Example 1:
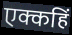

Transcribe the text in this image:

एक्कहिं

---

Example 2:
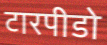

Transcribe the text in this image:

टारपीडो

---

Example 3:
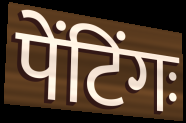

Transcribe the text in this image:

पेंटिंगः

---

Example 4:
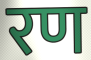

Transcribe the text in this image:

रण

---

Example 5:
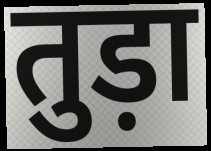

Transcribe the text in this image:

तुड़ा